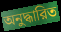
অনুদ্ধারিত